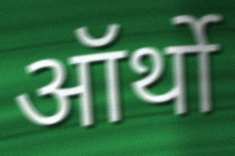
ऑर्थो